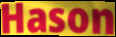
Hason